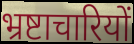
भ्रष्टाचारियों